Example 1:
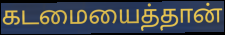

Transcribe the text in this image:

கடமையைத்தான்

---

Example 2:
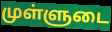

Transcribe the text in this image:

முள்ளுடை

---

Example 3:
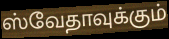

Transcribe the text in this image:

ஸ்வேதாவுக்கும்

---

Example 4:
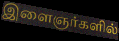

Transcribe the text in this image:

இளைஞர்களில்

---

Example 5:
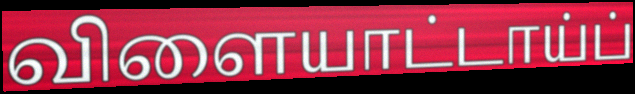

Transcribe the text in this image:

விளையாட்டாய்ப்